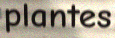
plantes